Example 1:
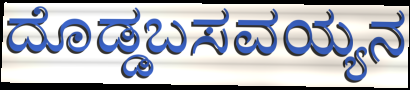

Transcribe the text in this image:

ದೊಡ್ಡಬಸವಯ್ಯನ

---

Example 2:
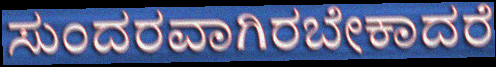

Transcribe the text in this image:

ಸುಂದರವಾಗಿರಬೇಕಾದರೆ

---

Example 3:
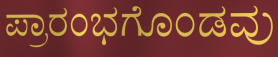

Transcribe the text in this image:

ಪ್ರಾರಂಭಗೊಂಡವು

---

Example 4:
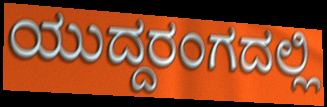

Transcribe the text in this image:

ಯುದ್ದರಂಗದಲ್ಲಿ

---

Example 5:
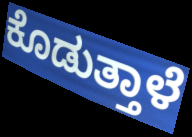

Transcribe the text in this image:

ಕೊಡುತ್ತಾಳೆ